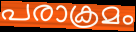
പരാക്രമം